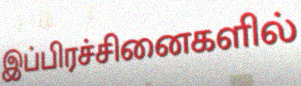
இப்பிரச்சினைகளில்